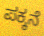
ಪಕ್ಕನೆ